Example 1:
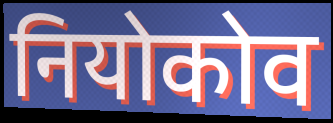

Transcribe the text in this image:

नियोकोव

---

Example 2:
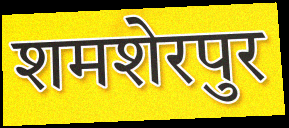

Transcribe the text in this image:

शमशेरपुर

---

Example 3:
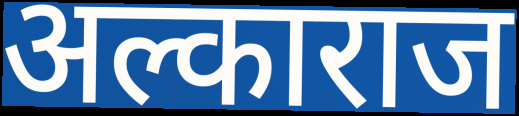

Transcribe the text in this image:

अल्काराज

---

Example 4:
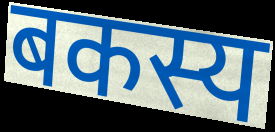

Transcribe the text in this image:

बकस्य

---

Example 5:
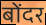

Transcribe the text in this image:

बोंदर